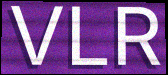
VLR